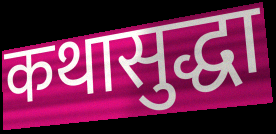
कथासुद्धा